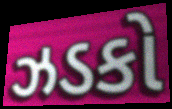
ઝડકો